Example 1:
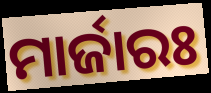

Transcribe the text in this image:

ମାର୍ଜାରଃ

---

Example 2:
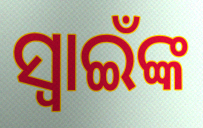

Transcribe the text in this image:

ସ୍ଵାଇଁଙ୍କ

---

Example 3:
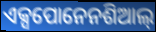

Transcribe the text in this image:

ଏକ୍ସପୋନେନଶିଆଲ୍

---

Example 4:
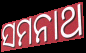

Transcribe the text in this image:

ସମନାଥ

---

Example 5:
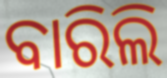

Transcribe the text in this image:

ବାରିଲି